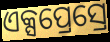
ଏକ୍ସପ୍ରେସ୍ରେ